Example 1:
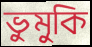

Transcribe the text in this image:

ভুমুকি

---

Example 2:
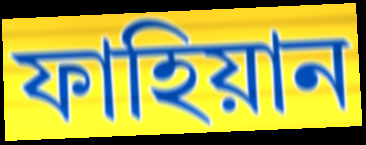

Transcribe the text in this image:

ফাহিয়ান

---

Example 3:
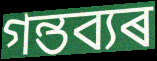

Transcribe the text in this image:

গন্তব্যৰ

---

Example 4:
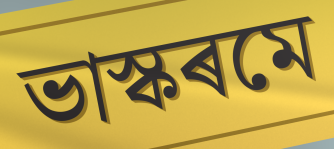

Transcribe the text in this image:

ভাস্কৰমে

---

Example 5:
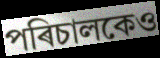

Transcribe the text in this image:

পৰিচালকেও